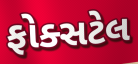
ફોક્સટેલ